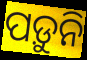
ପଡ଼ୁନି